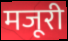
मजूरी